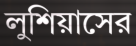
লুশিয়াসের